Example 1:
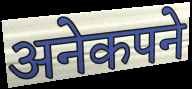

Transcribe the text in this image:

अनेकपने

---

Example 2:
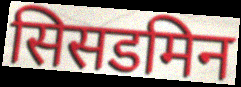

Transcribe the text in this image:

सिसडमिन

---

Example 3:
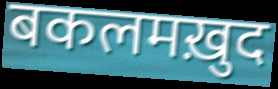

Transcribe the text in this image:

बकलमख़ुद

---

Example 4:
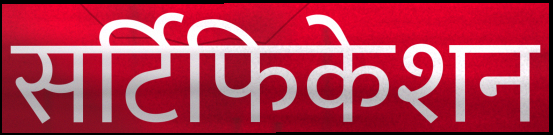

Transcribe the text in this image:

सर्टिफिकेशन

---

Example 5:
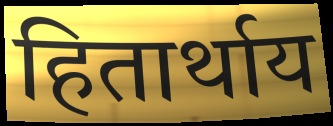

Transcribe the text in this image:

हितार्थाय